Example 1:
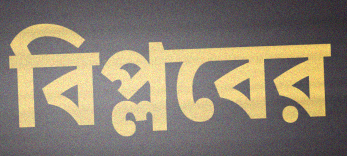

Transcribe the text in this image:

বিপ্লবের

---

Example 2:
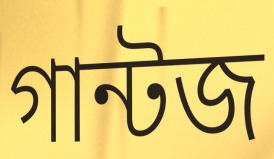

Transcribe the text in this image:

গান্টজ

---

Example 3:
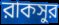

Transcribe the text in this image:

রাকসুর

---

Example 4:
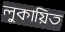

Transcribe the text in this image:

লুকায়িত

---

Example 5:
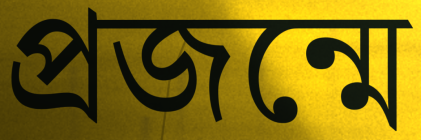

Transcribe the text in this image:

প্রজন্মে